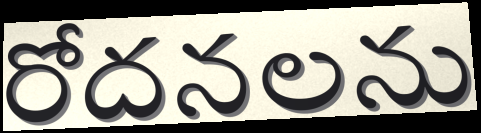
రోదనలను